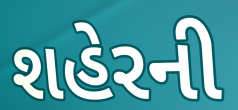
શહેરની